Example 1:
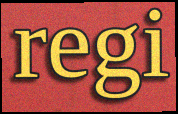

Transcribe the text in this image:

regi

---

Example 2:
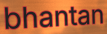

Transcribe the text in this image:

bhantan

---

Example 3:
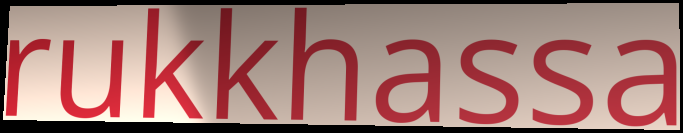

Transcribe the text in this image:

rukkhassa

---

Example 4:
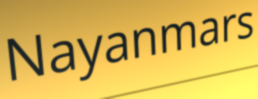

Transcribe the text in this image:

Nayanmars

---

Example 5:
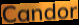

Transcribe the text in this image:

Candor